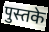
पुस्तके